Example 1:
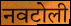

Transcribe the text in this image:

नवटोली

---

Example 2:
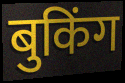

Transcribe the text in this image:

बुकिंग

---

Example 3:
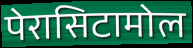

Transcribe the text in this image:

पेरासिटामोल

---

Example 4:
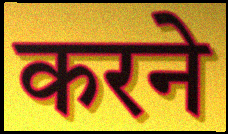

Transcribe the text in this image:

करने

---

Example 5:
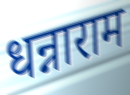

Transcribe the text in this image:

धन्नाराम